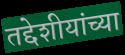
तद्देशीयांच्या